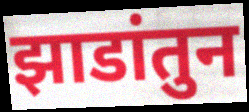
झाडांतुन